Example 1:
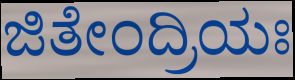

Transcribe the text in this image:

ಜಿತೇಂದ್ರಿಯಃ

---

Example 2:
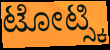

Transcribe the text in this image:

ಟೋಟ್ಸ್ಕಿ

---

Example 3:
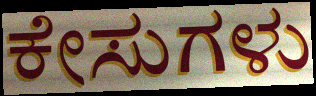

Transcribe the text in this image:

ಕೇಸುಗಳು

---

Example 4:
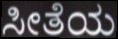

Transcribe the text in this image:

ಸೀತೆಯ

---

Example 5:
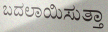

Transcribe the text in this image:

ಬದಲಾಯಿಸುತ್ತಾ